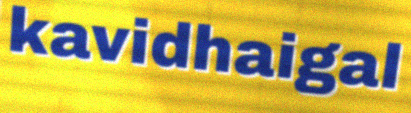
kavidhaigal